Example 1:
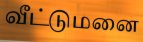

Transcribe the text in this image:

வீட்டுமனை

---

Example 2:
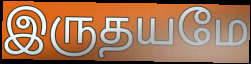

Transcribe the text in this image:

இருதயமே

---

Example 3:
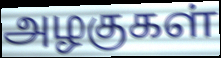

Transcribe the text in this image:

அழகுகள்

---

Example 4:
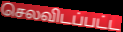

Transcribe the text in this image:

செலவிடப்பட்ட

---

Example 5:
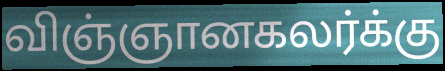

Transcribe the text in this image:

விஞ்ஞானகலர்க்கு